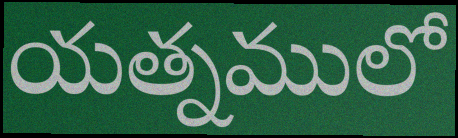
యత్నములో